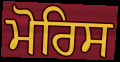
ਮੋਰਿਸ